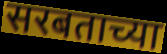
सरबताच्या